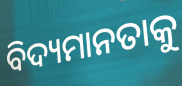
ବିଦ୍ୟମାନତାକୁ